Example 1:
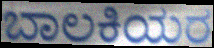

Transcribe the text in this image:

ಬಾಲಕಿಯರ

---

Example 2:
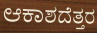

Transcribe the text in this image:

ಆಕಾಶದೆತ್ತರ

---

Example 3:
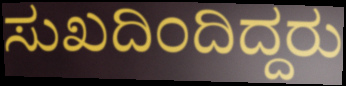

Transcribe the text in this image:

ಸುಖದಿಂದಿದ್ದರು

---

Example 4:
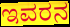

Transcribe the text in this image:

ಇವರನ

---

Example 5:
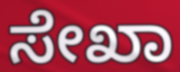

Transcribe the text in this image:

ಸೇಖಾ